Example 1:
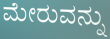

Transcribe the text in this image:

ಮೇರುವನ್ನು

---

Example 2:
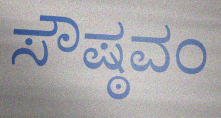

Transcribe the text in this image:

ಸೌಷ್ಠವಂ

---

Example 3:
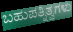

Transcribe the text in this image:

ಬಹುಪತ್ನಿತ್ವಗಳು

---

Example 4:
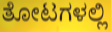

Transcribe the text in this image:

ತೋಟಗಳಲ್ಲಿ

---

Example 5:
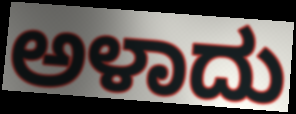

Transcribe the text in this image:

ಅಳಾದು